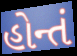
હોન્તં